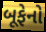
બૂફેનો